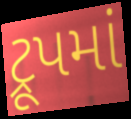
ટ્રૂપમાં